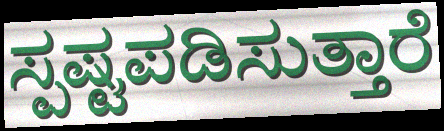
ಸ್ಪಷ್ಟಪಡಿಸುತ್ತಾರೆ